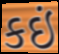
કઇં